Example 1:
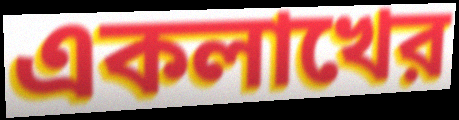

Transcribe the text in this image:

একলাখের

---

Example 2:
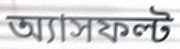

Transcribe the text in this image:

অ্যাসফল্ট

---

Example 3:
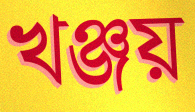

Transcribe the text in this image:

খঞ্জয়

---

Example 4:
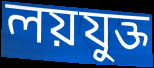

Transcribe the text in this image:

লয়যুক্ত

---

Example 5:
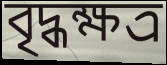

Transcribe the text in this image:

বৃদ্ধক্ষত্র